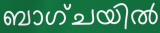
ബാഗ്ചയിൽ